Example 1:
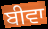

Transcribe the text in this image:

ਬੀਵਾ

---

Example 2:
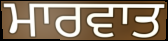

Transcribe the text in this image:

ਮਾਰਵਾਤ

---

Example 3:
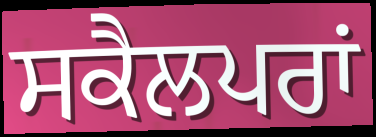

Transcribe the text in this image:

ਸਕੈਲਪਰਾਂ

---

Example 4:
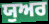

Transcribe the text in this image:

ਯੁਅਰ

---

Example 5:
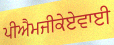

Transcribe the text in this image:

ਪੀਐਮਜੀਕੇਏਵਾਈ